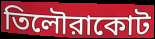
তিলৌরাকোট